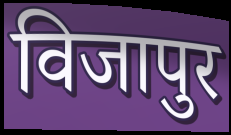
विजापुर